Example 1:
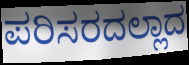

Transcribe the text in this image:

ಪರಿಸರದಲ್ಲಾದ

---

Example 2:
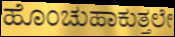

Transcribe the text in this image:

ಹೊಂಚುಹಾಕುತ್ತಲೇ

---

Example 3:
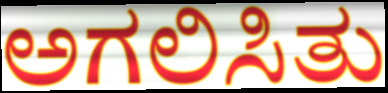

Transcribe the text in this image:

ಅಗಲಿಸಿತು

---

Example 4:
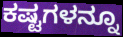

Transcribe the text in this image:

ಕಷ್ಟಗಳನ್ನೂ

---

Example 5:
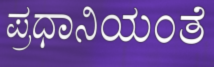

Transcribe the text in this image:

ಪ್ರಧಾನಿಯಂತೆ